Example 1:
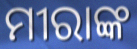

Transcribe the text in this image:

ମୀରାଙ୍କ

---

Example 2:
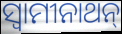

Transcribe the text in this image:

ସ୍ୱାମୀନାଥନ୍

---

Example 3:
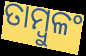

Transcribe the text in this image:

ତାମ୍ବୁଳଂ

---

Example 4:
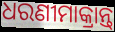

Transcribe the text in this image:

ଧରଣୀମାକ୍ରାନ୍ତ୍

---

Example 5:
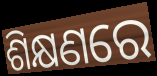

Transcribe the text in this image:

ଶିକ୍ଷଣରେ